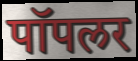
पॉपलर